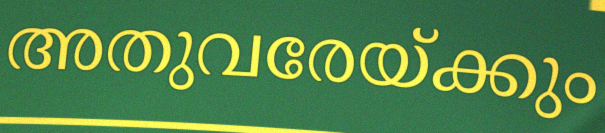
അതുവരേയ്ക്കും